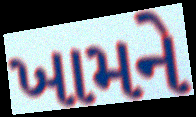
ખામને